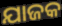
ଯାଜକ